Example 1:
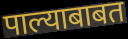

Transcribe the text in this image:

पाल्याबाबत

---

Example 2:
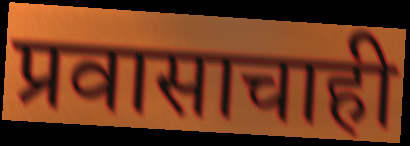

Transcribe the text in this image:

प्रवासाचाही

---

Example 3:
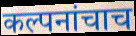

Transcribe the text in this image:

कल्पनांचाच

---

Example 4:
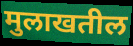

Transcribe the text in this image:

मुलाखतील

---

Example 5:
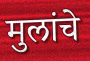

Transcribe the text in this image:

मुलांचे